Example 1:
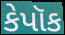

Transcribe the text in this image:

કેપૉક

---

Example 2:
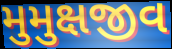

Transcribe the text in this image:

મુમુક્ષજીવ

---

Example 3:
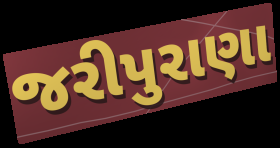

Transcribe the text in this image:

જરીપુરાણા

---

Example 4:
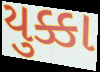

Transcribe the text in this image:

યુક્કા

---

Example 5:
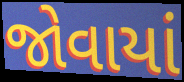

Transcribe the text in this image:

જોવાયાં